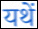
यथें